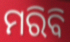
ମରିବି